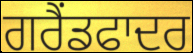
ਗਰੈਂਡਫਾਦਰ